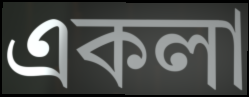
একলা